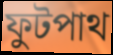
ফুটপাথ